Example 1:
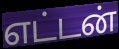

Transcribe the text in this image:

எட்டன்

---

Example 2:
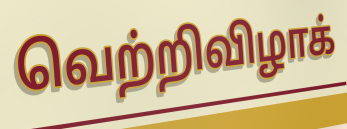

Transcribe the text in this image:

வெற்றிவிழாக்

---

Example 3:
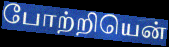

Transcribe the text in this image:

போற்றியென்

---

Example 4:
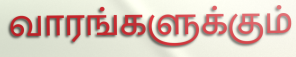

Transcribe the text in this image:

வாரங்களுக்கும்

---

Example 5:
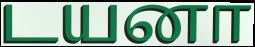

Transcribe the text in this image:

டயனா